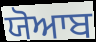
ਯੋਆਬ